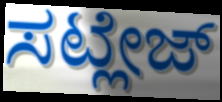
ಸಟ್ಲೇಜ್